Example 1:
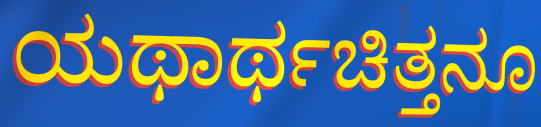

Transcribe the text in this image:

ಯಥಾರ್ಥಚಿತ್ತನೂ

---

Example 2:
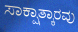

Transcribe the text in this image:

ಸಾಕ್ಷಾತ್ಕಾರವು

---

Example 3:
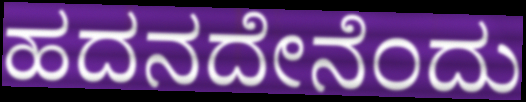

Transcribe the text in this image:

ಹದನದೇನೆಂದು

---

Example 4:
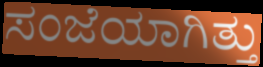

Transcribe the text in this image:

ಸಂಜೆಯಾಗಿತ್ತು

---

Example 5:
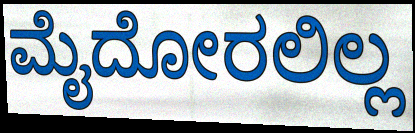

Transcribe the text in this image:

ಮೈದೋರಲಿಲ್ಲ